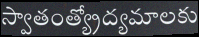
స్వాతంత్య్రోద్యమాలకు